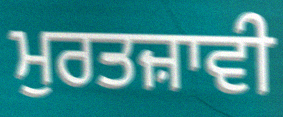
ਮੁਰਤਜ਼ਾਵੀ